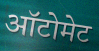
ऑटोमेट